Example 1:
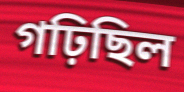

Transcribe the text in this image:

গঢ়িছিল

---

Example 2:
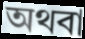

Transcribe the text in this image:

অথবা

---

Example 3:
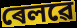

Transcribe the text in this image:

ৰেলৱে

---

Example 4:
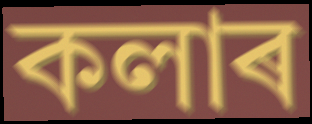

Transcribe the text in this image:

কলাৰ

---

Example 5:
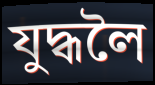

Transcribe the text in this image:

যুদ্ধলৈ